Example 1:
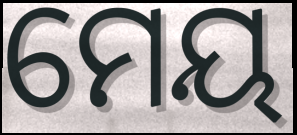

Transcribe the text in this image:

ମେୟ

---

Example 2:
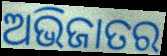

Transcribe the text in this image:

ଅଭିଜାତର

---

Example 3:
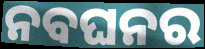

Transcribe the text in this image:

ନବଘନର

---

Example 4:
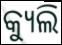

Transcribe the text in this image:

କ୍ୟୁଲି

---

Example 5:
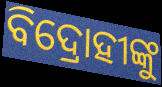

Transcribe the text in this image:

ବିଦ୍ରୋହୀଙ୍କୁ